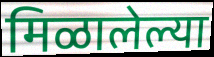
मिळालेल्या